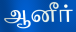
ஆனீர்